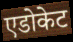
एडोकेट